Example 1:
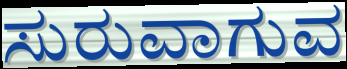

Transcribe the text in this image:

ಸುರುವಾಗುವ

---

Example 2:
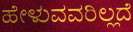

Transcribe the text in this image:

ಹೇಳುವವರಿಲ್ಲದೆ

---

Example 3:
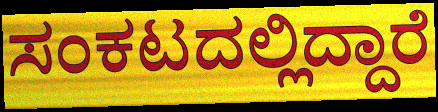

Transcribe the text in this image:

ಸಂಕಟದಲ್ಲಿದ್ದಾರೆ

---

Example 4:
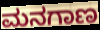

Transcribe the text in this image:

ಮನಗಾಣ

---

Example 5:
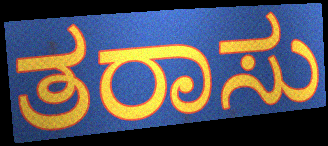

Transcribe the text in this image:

ತರಾಸು